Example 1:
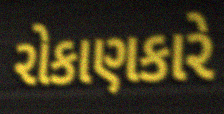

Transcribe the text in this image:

રોકાણકારે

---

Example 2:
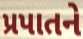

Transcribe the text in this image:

પ્રપાતને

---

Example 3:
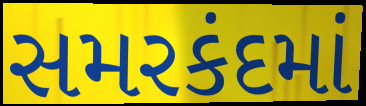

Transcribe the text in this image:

સમરકંદમાં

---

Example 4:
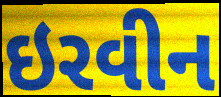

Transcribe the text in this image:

ઇરવીન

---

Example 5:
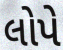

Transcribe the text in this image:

લોપે